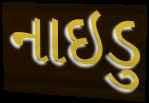
નાઇડુ